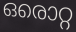
ഒരൊറ്റ